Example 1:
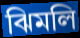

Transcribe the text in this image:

ঝিমলি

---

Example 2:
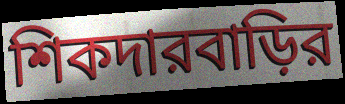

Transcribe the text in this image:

শিকদারবাড়ির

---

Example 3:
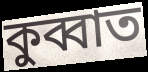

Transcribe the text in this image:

কুব্বাত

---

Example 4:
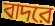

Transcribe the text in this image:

বাদরে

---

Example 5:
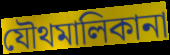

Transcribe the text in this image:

যৌথমালিকানা